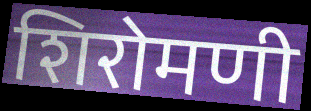
शिरोमणी